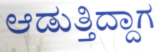
ಆಡುತ್ತಿದ್ದಾಗ